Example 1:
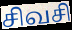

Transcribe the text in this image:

சிவசி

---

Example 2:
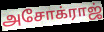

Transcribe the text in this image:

அசோக்ராஜ்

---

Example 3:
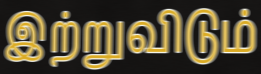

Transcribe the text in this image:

இற்றுவிடும்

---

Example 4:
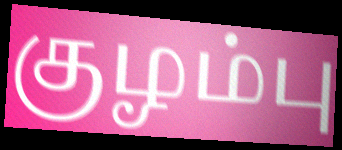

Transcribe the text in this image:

குழம்பு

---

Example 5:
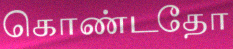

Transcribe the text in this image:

கொண்டதோ